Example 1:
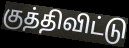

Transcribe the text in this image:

குத்திவிட்டு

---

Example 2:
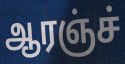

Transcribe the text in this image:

ஆரஞ்ச்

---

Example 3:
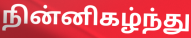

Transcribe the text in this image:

நின்னிகழ்ந்து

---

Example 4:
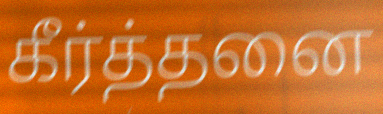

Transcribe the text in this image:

கீர்த்தனை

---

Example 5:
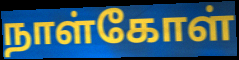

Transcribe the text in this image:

நாள்கோள்